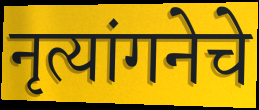
नृत्यांगनेचे